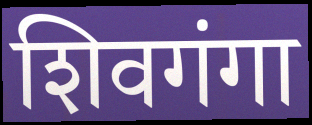
शिवगंगा